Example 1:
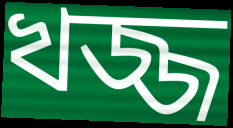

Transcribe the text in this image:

খজ্জ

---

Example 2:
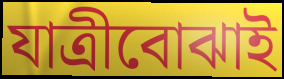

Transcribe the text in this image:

যাত্রীবোঝাই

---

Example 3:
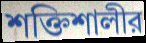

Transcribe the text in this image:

শক্তিশালীর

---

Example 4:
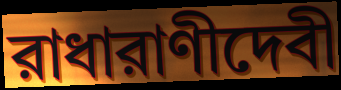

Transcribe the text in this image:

রাধারাণীদেবী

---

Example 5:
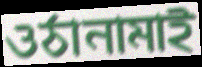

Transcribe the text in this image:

ওঠানামাই